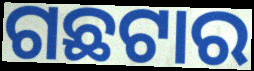
ଗଛଟାର